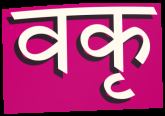
वकृ